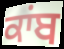
ਕਾਂਬ